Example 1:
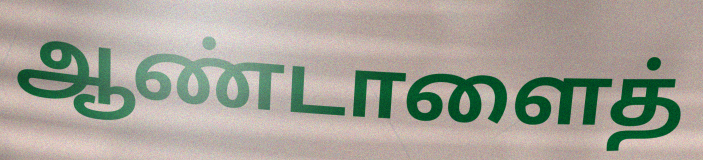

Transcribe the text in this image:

ஆண்டாளைத்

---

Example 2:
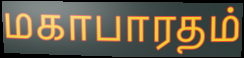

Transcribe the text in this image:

மகாபாரதம்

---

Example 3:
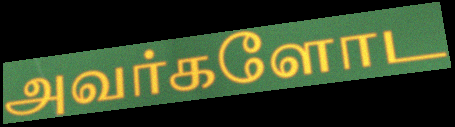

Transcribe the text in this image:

அவர்களோட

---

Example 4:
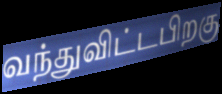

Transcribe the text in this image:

வந்துவிட்டபிறகு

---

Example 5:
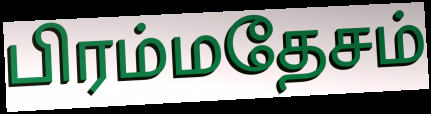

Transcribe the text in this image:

பிரம்மதேசம்